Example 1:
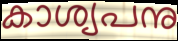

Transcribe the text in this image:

കാശ്യപനു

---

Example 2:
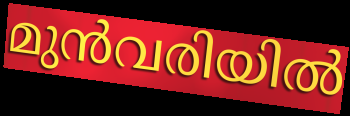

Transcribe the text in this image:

മുൻവരിയിൽ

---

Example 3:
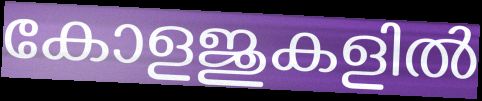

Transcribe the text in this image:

കോളജുകളിൽ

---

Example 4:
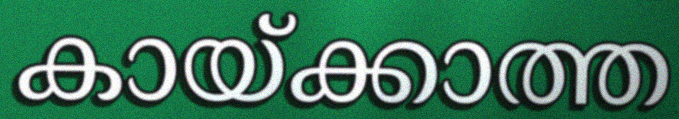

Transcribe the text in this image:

കായ്ക്കാത്ത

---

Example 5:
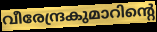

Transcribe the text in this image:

വീരേന്ദ്രകുമാറിന്റെ